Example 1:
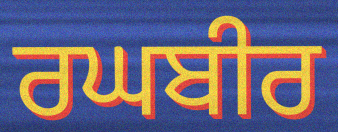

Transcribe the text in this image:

ਰਘਬੀਰ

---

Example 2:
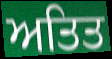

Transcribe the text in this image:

ਅਤਿਤ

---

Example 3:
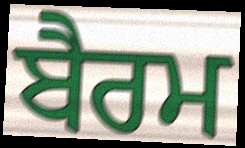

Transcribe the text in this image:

ਬੈਰਮ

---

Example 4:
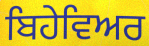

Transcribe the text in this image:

ਬਿਹੇਵਿਅਰ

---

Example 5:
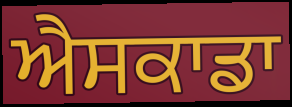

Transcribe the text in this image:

ਐਸਕਾਡਾ